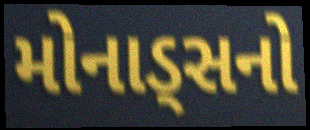
મોનાડ્સનો